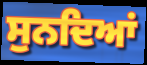
ਸੁਨਦਿਆਂ